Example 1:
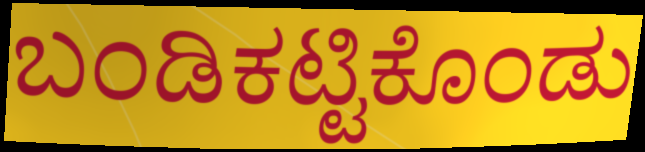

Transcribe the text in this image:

ಬಂಡಿಕಟ್ಟಿಕೊಂಡು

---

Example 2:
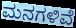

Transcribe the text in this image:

ಮನಗಳಿವೆ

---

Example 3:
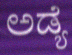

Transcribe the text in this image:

ಅಡ್ಯೆ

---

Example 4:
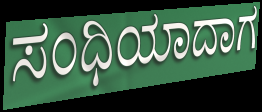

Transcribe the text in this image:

ಸಂಧಿಯಾದಾಗ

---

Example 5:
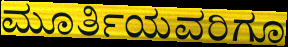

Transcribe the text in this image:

ಮೂರ್ತಿಯವರಿಗೂ